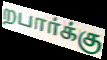
றபார்க்கு